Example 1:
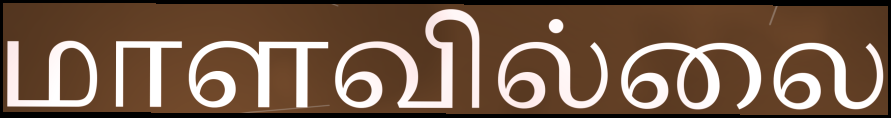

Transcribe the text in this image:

மாளவில்லை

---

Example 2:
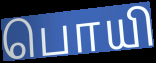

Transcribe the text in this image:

பொயி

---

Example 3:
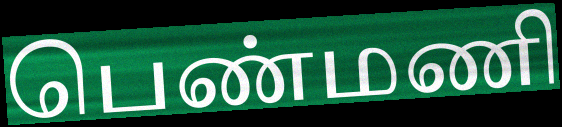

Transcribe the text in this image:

பெண்மணி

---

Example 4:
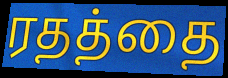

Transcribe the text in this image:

ரதத்தை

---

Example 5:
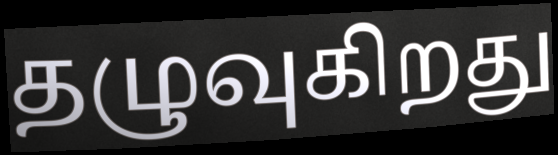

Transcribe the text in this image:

தழுவுகிறது